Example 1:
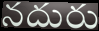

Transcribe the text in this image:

నదురు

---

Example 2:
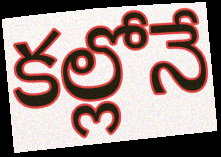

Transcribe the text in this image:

కల్లోనే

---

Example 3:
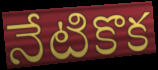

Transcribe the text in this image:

నేటికొక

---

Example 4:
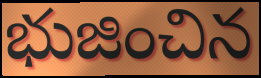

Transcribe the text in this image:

భుజించిన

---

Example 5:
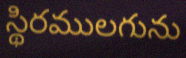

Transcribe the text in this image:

స్థిరములగును